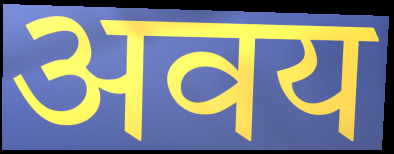
अवय